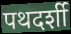
पथदर्शी